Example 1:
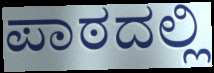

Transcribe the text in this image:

ಪಾಠದಲ್ಲಿ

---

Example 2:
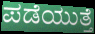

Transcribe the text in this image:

ಪಡೆಯುತ್ತೆ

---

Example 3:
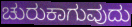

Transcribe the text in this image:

ಚುರುಕಾಗುವುದು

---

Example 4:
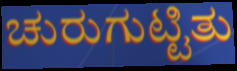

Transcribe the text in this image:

ಚುರುಗುಟ್ಟಿತು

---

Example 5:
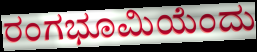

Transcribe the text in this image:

ರಂಗಭೂಮಿಯೆಂದು